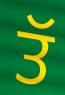
उॅ